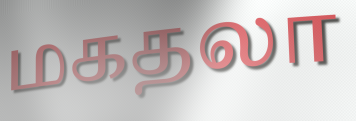
மகதலா